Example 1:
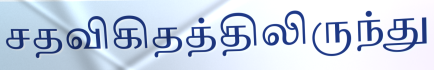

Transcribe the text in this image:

சதவிகிதத்திலிருந்து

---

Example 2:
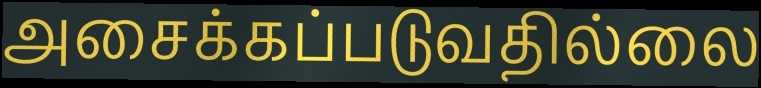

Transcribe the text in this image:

அசைக்கப்படுவதில்லை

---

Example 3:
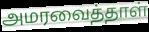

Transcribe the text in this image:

அமரவைத்தாள்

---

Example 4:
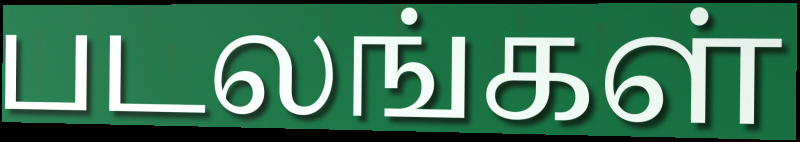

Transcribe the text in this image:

படலங்கள்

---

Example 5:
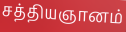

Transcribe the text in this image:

சத்தியஞானம்